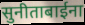
सुनीताबाईना